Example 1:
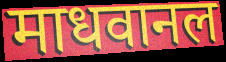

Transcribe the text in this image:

माधवानल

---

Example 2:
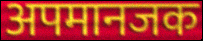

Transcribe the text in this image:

अपमानजक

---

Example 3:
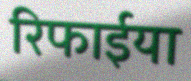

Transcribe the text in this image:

रिफाईया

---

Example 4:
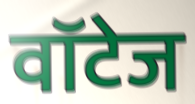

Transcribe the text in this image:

वॉटेज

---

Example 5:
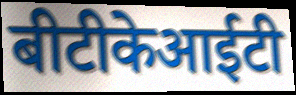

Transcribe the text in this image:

बीटीकेआईटी